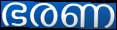
ഭരണ